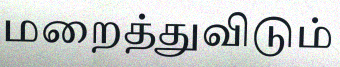
மறைத்துவிடும்